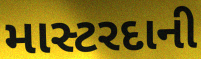
માસ્ટરદાની